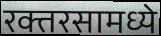
रक्तरसामध्ये